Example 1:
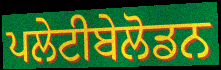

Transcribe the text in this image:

ਪਲੇਟੀਬੇਲੋਡਨ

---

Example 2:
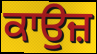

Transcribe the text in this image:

ਕਾਉਜ਼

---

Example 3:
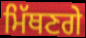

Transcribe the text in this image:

ਮਿੱਥਣਗੇ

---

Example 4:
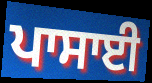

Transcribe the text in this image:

ਪਾਸਾਈ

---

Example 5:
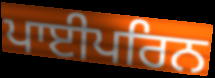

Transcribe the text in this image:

ਪਾਈਪਰਿਨ